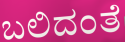
ಬಲಿದಂತೆ